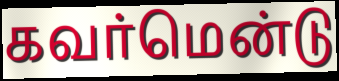
கவர்மென்டு